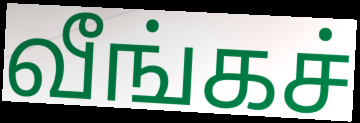
வீங்கச்